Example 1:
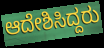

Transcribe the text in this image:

ಆದೇಶಿಸಿದ್ದರು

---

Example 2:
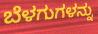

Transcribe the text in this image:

ಬೆಳಗುಗಳನ್ನು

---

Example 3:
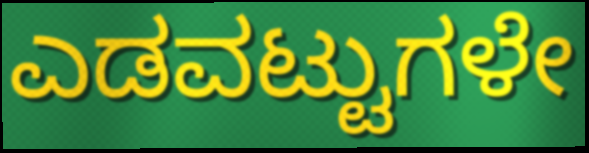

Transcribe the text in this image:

ಎಡವಟ್ಟುಗಳೇ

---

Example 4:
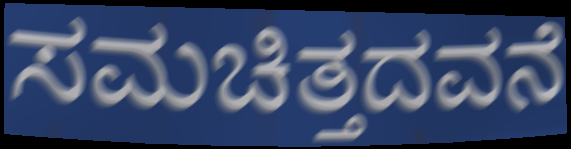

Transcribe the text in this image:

ಸಮಚಿತ್ತದವನೆ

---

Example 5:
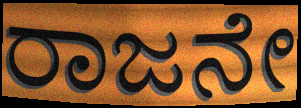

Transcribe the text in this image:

ರಾಜನೇ